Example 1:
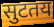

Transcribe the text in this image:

सुटतय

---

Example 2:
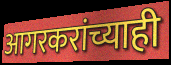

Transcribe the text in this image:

आगरकरांच्याही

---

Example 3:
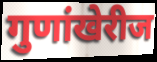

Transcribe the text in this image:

गुणांखेरीज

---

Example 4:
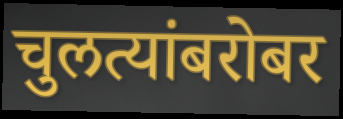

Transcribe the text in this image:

चुलत्यांबरोबर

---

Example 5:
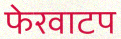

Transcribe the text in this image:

फेरवाटप